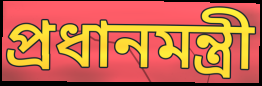
প্রধানমন্ত্রী